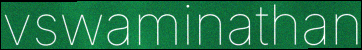
vswaminathan